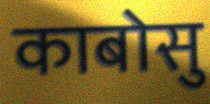
काबोसु